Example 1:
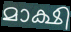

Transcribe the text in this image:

മാക്ഷി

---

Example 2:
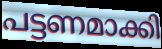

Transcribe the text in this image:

പട്ടണമാക്കി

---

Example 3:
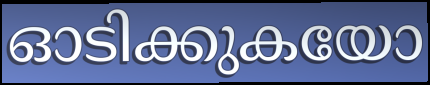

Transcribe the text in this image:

ഓടിക്കുകയോ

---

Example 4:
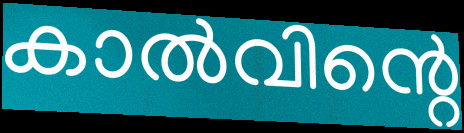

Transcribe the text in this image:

കാൽവിന്റെ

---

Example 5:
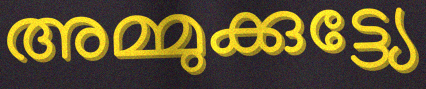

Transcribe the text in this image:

അമ്മുക്കുട്ട്യേ